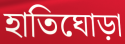
হাতিঘোড়া